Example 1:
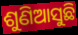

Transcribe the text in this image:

ଶୁଣିଆସୁଛି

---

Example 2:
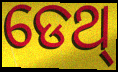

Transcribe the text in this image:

ଡେଥ୍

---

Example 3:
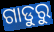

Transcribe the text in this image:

ଗାଡୁରୁ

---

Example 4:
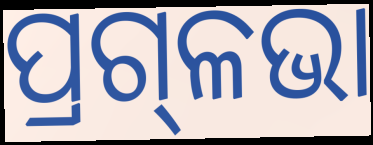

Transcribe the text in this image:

ପ୍ରଗ୍‌ଳଭା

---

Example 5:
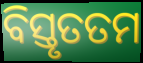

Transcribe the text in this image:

ବିସ୍ତୃତତମ